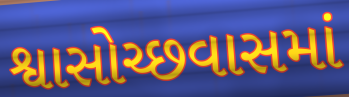
શ્વાસોચ્છવાસમાં